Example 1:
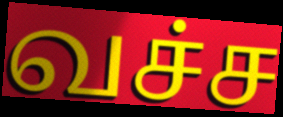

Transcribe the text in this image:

வச்ச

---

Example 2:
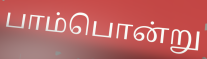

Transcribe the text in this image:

பாம்பொன்று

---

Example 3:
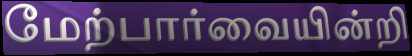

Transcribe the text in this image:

மேற்பார்வையின்றி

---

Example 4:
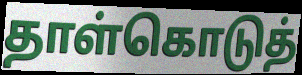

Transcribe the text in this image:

தாள்கொடுத்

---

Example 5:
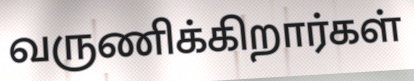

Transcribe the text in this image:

வருணிக்கிறார்கள்